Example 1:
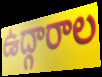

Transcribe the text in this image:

ఉద్గారాల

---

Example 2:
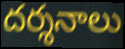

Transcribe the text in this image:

దర్శనాలు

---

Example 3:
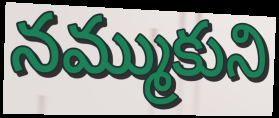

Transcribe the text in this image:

నమ్ముకుని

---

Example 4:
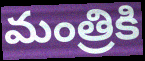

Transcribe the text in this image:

మంత్రికి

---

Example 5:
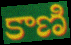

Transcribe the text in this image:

కాణి